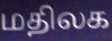
மதிலக